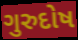
ગુરુદોષ